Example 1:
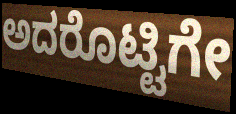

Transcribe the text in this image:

ಅದರೊಟ್ಟಿಗೇ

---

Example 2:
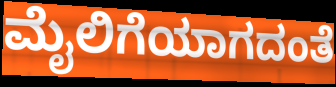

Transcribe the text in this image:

ಮೈಲಿಗೆಯಾಗದಂತೆ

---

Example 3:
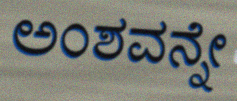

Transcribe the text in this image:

ಅಂಶವನ್ನೇ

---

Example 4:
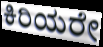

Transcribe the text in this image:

ಕಿರಿಯರೇ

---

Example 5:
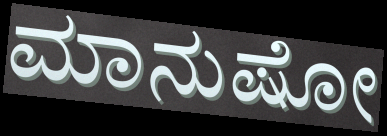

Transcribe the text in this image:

ಮಾನುಷೋ